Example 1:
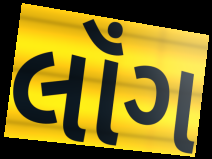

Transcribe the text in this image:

લૉંગ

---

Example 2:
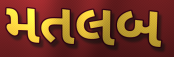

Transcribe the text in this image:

મતલબ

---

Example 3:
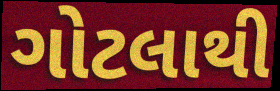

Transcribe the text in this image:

ગોટલાથી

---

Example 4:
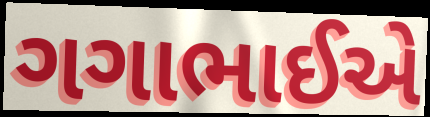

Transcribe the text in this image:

ગગાભાઈએ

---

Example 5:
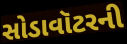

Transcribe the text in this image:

સોડાવૉટરની